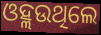
ଓହ୍ଲଉଥିଲେ